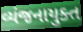
વ્યંજનાયુક્ત